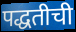
पद्धतीची